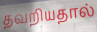
தவறியதால்